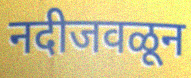
नदीजवळून